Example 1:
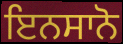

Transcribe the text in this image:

ਇਨਸਾਨੋ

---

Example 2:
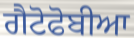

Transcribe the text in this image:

ਗੈਟੋਫੋਬੀਆ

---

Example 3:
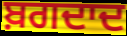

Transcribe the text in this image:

ਬ਼ਗਦਾਦ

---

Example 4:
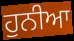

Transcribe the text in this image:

ਹੁਨੀਆ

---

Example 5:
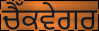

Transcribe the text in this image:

ਚੈੱਕਵੇਗਰ